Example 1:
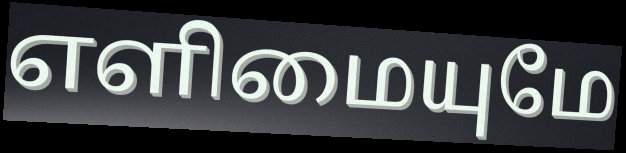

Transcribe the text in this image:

எளிமையுமே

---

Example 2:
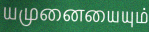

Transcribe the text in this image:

யமுனையையும்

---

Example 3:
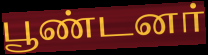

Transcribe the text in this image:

பூண்டனர்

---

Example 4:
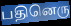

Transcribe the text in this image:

பதினெரு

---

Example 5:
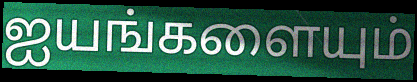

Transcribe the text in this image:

ஐயங்களையும்